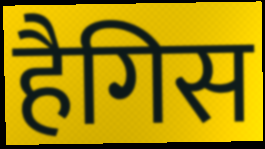
हैगिस